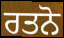
ਰਤਨੋ